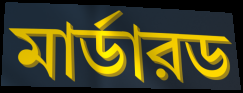
মার্ডারড